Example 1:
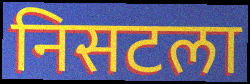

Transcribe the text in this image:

निसटला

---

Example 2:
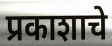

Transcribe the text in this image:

प्रकाशाचे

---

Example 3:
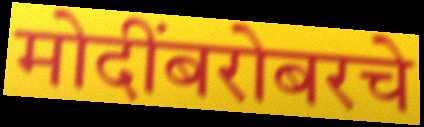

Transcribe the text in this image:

मोदींबरोबरचे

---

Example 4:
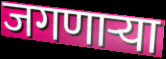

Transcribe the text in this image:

जगणार्‍या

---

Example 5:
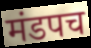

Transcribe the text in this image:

मंडपच